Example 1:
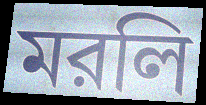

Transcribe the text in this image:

মরলি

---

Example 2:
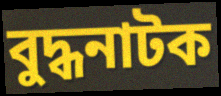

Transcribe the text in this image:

বুদ্ধনাটক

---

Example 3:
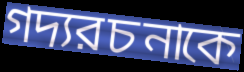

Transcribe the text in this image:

গদ্যরচনাকে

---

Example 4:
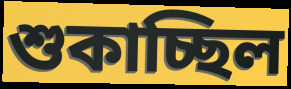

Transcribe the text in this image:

শুকাচ্ছিল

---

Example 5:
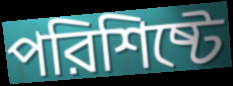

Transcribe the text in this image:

পরিশিষ্টে